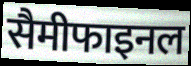
सैमीफाइनल